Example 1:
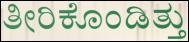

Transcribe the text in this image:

ತೀರಿಕೊಂಡಿತ್ತು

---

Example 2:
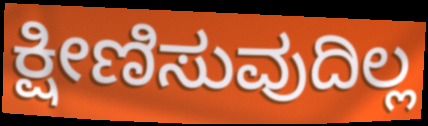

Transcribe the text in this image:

ಕ್ಷೀಣಿಸುವುದಿಲ್ಲ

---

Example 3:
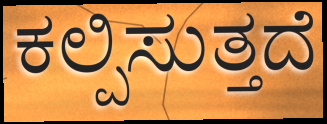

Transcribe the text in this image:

ಕಲ್ಪಿಸುತ್ತದೆ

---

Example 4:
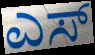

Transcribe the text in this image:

ಎಸ್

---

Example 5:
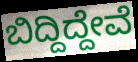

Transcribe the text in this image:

ಬಿದ್ದಿದ್ದೇವೆ